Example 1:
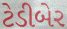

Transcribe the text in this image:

ટેડીબેર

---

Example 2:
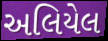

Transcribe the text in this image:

અલિયેલ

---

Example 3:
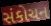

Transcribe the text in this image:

સંકોચન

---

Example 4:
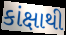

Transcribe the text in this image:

કાંક્ષાથી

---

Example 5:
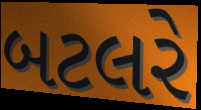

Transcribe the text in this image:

બટલરે